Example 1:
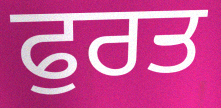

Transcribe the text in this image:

ਫੁਰਤ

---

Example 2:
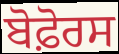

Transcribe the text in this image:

ਬੋਫ਼ੋਰਸ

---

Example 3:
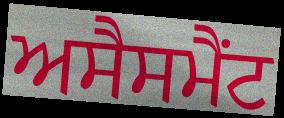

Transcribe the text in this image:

ਅਸੈਸਮੈਂਟ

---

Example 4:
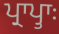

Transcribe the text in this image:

ਪ੍ਰਾਪ੍ਤਾਃ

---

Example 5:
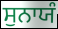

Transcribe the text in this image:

ਸੁਨਾਯੰ